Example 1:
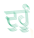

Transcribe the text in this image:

ਦੁਹੂੰ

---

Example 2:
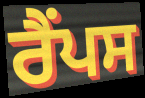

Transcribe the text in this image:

ਰੈਂਪਸ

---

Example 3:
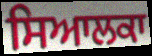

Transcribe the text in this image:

ਸਿਆਲਕਾ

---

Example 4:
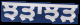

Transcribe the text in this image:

ਝੜਾਝੜ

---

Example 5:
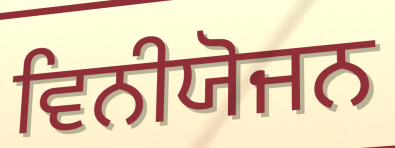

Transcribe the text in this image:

ਵਿਨੀਯੋਜਨ